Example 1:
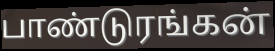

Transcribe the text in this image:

பாண்டுரங்கன்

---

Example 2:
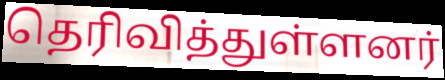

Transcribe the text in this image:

தெரிவித்துள்ளனர்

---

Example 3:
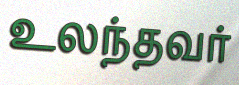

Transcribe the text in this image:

உலந்தவர்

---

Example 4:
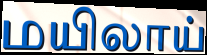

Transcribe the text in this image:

மயிலாய்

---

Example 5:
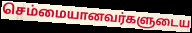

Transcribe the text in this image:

செம்மையானவர்களுடைய